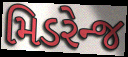
મિડરેન્જ